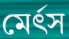
মের্ৎস